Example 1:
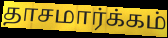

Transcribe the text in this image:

தாசமார்க்கம்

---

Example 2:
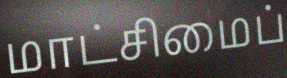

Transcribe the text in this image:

மாட்சிமைப்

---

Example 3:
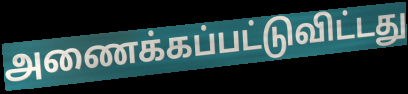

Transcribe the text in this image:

அணைக்கப்பட்டுவிட்டது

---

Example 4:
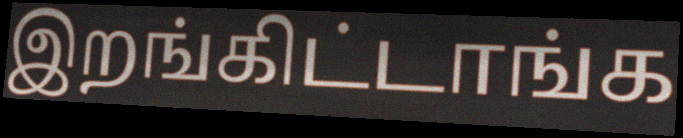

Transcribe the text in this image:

இறங்கிட்டாங்க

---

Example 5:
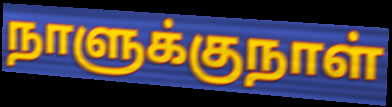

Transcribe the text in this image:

நாளுக்குநாள்